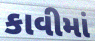
કાવીમાં